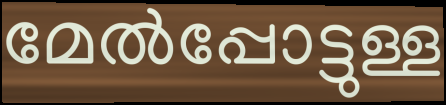
മേൽപ്പോട്ടുള്ള